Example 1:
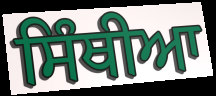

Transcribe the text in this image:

ਸਿੰਥੀਆ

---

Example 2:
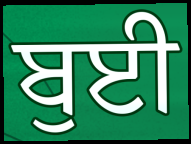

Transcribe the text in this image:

ਬੁਈ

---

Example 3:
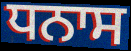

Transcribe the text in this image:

ਧਨਾਸ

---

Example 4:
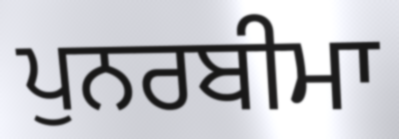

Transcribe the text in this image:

ਪੁਨਰਬੀਮਾ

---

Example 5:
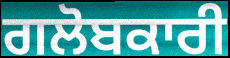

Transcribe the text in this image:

ਗਲੋਬਕਾਰੀ